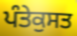
ਪੰਤੇਕੁਸਤ